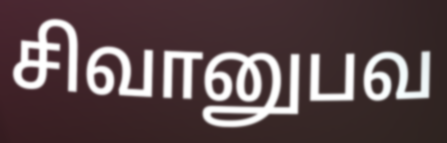
சிவானுபவ